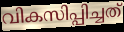
വികസിപ്പിച്ചത്